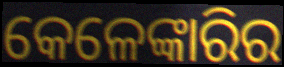
କେଳେଙ୍କାରିର